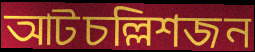
আটচল্লিশজন